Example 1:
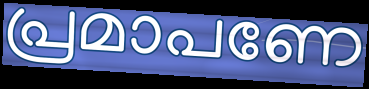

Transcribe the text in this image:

പ്രമാപണേ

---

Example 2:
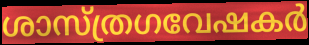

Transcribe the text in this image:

ശാസ്ത്രഗവേഷകർ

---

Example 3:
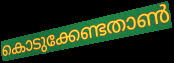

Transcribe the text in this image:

കൊടുക്കേണ്ടതാൺ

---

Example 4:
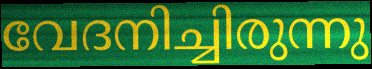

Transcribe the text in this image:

വേദനിച്ചിരുന്നു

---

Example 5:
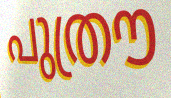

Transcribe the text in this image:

പുത്രൗ